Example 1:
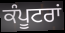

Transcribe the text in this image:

ਕੰਪੂਟਰਾਂ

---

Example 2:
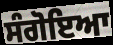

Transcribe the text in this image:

ਸੰਗੋਇਆ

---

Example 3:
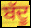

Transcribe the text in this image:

ਬੱਦੂ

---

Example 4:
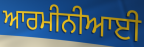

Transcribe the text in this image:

ਆਰਮੀਨੀਆਈ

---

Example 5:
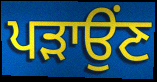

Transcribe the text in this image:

ਪੜਾਉਂਣ